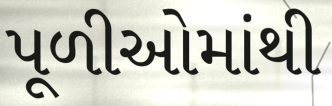
પૂળીઓમાંથી